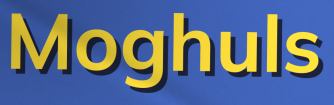
Moghuls